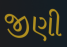
જીણી